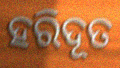
ହରିଦୂତ